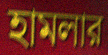
হামলার